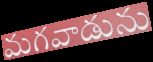
మగవాడును